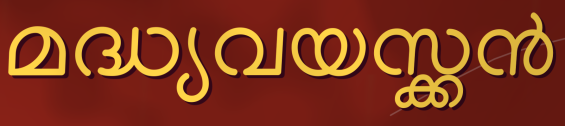
മദ്ധ്യവയസ്ക്കൻ